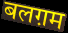
बलग़म